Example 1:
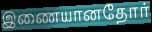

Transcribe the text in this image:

இணையானதோர்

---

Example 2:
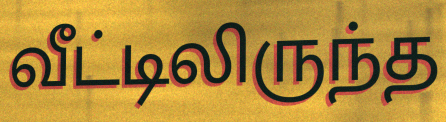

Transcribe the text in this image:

வீட்டிலிருந்த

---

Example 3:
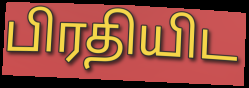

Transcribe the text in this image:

பிரதியிட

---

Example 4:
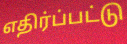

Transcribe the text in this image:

எதிர்ப்பட்டு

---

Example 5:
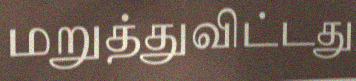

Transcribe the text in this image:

மறுத்துவிட்டது